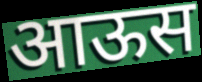
आऊस